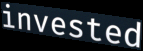
invested